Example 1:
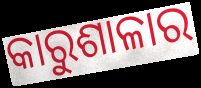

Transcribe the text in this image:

କାରୁଶାଳାର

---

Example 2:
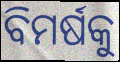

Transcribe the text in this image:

ବିମର୍ଷକୁ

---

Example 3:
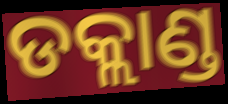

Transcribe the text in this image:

ଡକ୍ଲାଣ୍ଡ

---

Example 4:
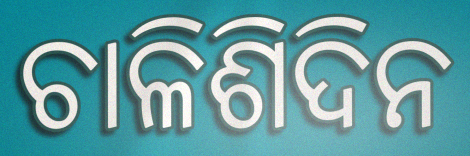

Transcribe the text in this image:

ଚାଳିଶିଦିନ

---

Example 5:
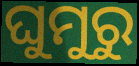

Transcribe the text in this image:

ଘୁମୁରୁ